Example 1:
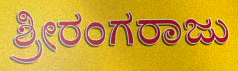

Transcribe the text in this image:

ಶ್ರೀರಂಗರಾಜು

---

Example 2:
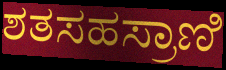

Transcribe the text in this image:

ಶತಸಹಸ್ರಾಣಿ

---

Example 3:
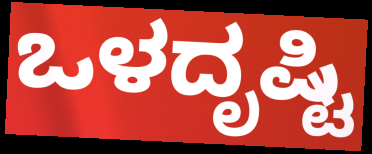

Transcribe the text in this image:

ಒಳದೃಷ್ಟಿ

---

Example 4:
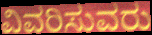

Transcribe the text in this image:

ವಿವರಿಸುವರು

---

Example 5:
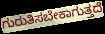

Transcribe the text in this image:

ಗುರುತಿಸಬೇಕಾಗುತ್ತದೆ